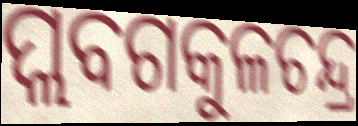
ପ୍ଲବଗକୁଳଚନ୍ଦ୍ର